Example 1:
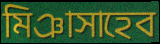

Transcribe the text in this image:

মিঞাসাহেব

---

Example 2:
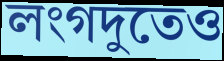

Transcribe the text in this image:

লংগদুতেও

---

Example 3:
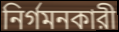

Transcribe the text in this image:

নির্গমনকারী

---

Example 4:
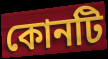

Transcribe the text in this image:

কোনটি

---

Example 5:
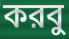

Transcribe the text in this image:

করবু